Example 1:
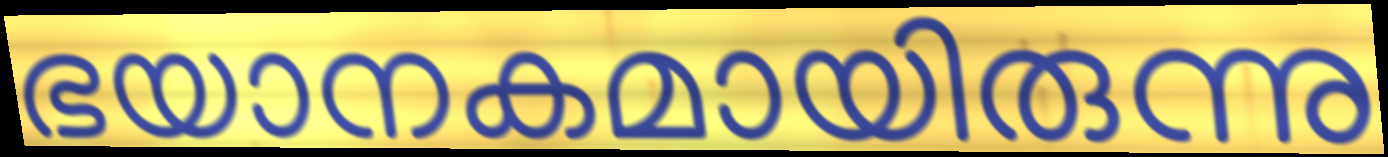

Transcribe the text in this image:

ഭയാനകമായിരുന്നു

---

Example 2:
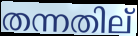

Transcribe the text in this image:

തന്നതില്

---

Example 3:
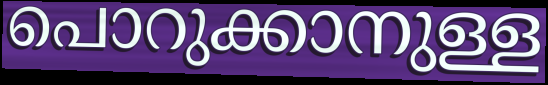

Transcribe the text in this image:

പൊറുക്കാനുള്ള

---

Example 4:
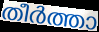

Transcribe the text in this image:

തീർത്താ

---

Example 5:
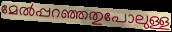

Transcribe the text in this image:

മേൽപ്പറഞ്ഞതുപോലുള്ള